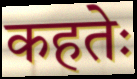
कहतेः